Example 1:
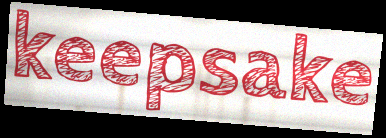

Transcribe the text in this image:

keepsake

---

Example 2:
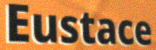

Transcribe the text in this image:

Eustace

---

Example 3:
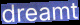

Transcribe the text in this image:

dreamt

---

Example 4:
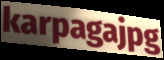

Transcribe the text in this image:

karpagajpg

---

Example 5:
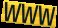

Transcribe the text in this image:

WWW